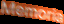
Memoria